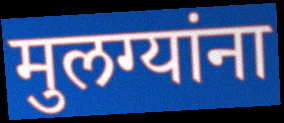
मुलग्यांना